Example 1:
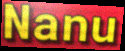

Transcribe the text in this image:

Nanu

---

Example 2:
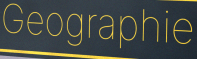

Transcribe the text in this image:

Geographie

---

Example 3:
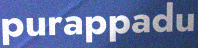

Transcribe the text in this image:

purappadu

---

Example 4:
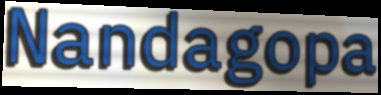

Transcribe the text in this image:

Nandagopa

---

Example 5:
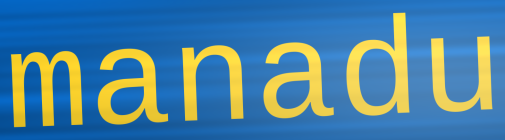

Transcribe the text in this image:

manadu